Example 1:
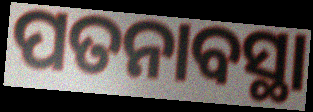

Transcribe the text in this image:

ପତନାବସ୍ଥା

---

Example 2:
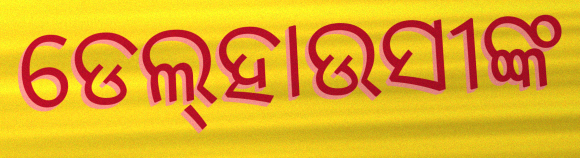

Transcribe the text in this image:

ଡେଲ୍‌ହାଉସୀଙ୍କ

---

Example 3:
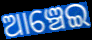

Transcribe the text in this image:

ଆଞ୍ଚେଇ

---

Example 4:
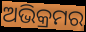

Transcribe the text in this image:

ଅଭିକ୍ରମର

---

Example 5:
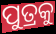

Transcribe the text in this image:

ପୁତ୍ରକୁ